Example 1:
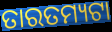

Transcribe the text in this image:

ତାରତମ୍ୟଟା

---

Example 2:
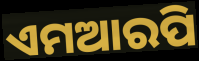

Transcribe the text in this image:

ଏମଆରପି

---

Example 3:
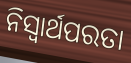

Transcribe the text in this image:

ନିସ୍ଵାର୍ଥପରତା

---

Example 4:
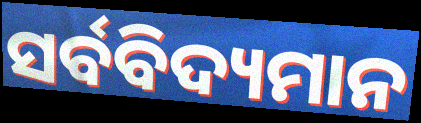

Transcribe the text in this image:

ସର୍ବବିଦ୍ୟମାନ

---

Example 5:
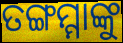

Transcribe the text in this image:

ତଙ୍ଗମ୍ମାଙ୍କୁ